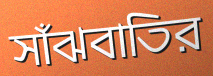
সাঁঝবাতির